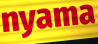
nyama